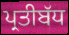
ਪ੍ਰਤੀਬੱਧ